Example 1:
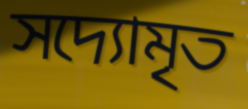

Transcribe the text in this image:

সদ্যোমৃত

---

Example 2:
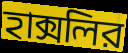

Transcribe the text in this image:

হাক্সলির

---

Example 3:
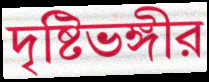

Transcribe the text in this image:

দৃষ্টিভঙ্গীর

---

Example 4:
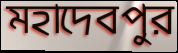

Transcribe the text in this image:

মহাদেবপুর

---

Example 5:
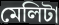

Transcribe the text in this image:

মেলিটা